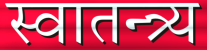
स्वातन्त्र्य